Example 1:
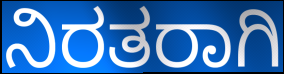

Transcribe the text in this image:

ನಿರತರಾಗಿ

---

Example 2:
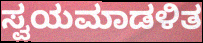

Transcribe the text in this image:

ಸ್ವಯಮಾಡಳಿತ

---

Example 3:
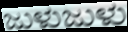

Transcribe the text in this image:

ಜುಳುಜುಳು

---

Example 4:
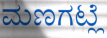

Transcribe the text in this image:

ಮಣಗಟ್ಲೆ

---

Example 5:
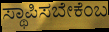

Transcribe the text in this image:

ಸ್ಥಾಪಿಸಬೇಕೆಂಬ